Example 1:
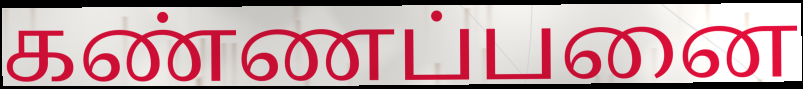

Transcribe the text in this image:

கண்ணப்பனை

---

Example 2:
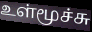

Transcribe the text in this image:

உள்மூச்சு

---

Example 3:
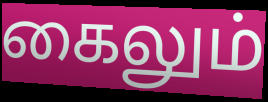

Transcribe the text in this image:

கைலும்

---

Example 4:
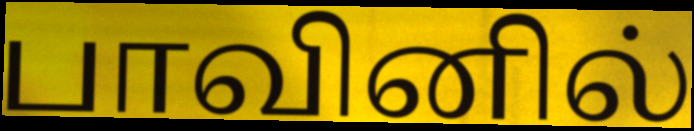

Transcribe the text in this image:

பாவினில்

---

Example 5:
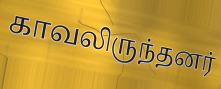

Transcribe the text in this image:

காவலிருந்தனர்